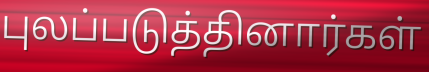
புலப்படுத்தினார்கள்